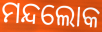
ମନ୍ଦଲୋକ